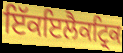
ਇੱਕਇਲੈਕਟ੍ਰਿਕ